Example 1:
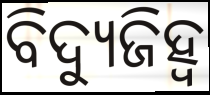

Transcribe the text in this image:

ବିଦ୍ୟୁଜିହ୍ୱ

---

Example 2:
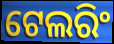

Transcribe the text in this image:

ଟେଲରିଂ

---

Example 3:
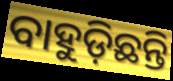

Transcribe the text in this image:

ବାହୁଡ଼ିଛନ୍ତି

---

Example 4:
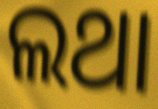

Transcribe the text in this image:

ଲଥା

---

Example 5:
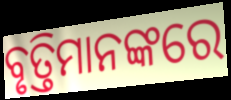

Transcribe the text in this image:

ବୃତ୍ତିମାନଙ୍କରେ